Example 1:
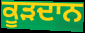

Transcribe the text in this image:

ਕੂੜਦਾਨ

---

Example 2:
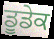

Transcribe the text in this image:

ਡੂਡੇਕ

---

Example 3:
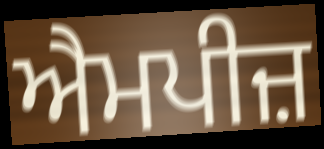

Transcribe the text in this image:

ਐਮਪੀਜ਼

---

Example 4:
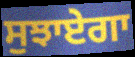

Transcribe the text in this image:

ਸੁਝਾਏਗਾ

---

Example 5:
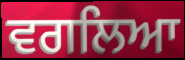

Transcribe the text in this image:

ਵਗਲਿਆ